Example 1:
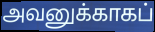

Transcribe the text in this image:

அவனுக்காகப்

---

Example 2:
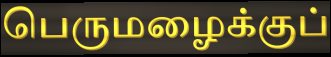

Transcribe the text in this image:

பெருமழைக்குப்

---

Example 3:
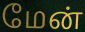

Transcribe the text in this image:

மேன்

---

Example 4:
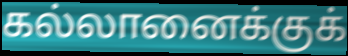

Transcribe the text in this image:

கல்லானைக்குக்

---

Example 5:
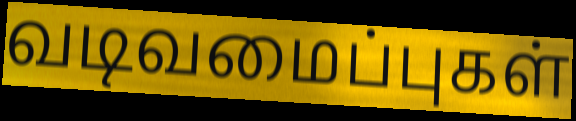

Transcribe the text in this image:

வடிவமைப்புகள்